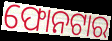
ଫୋନଟାର